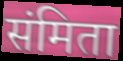
संमिता